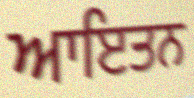
ਆਇਤਨ